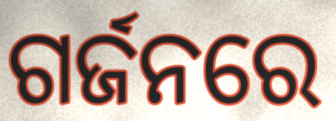
ଗର୍ଜନରେ